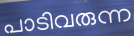
പാടിവരുന്ന